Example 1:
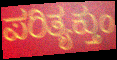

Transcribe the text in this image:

ಪರಿತ್ಯಕ್ತುಂ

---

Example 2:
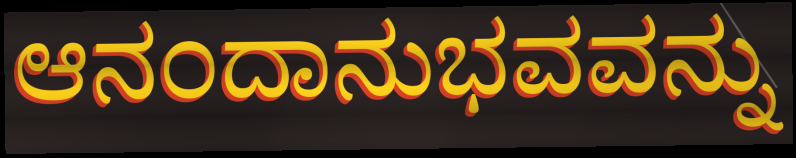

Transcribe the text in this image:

ಆನಂದಾನುಭವವನ್ನು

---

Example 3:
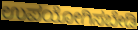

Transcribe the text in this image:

ಉಪಯೋಗಿಸಬೇಡಿ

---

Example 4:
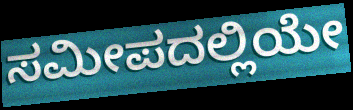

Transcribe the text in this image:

ಸಮೀಪದಲ್ಲಿಯೇ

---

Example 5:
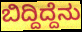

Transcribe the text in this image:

ಬಿದ್ದಿದ್ದೆನು